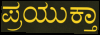
ಪ್ರಯುಕ್ತಾ